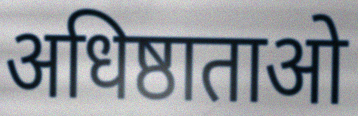
अधिष्ठाताओ